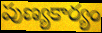
పుణ్యకార్యం